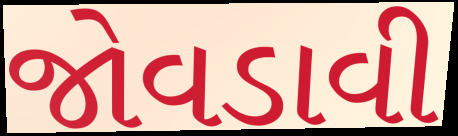
જોવડાવી